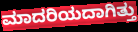
ಮಾದರಿಯದಾಗಿತ್ತು